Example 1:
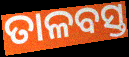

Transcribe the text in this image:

ତାଳବସ୍ତ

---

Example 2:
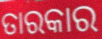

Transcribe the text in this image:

ତାରକାର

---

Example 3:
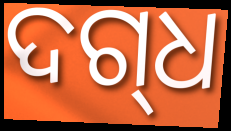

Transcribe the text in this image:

ଦଗ୍‌ଧ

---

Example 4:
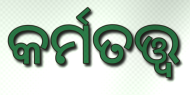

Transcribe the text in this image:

କର୍ମତତ୍ତ୍ୱ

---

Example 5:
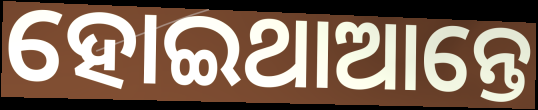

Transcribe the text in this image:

ହୋଇଥାଆନ୍ତେ